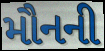
મૌનની